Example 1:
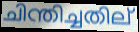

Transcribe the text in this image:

ചിന്തിച്ചതില്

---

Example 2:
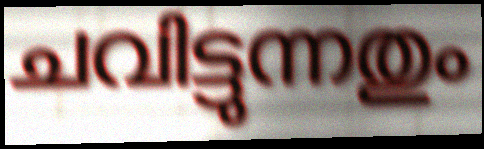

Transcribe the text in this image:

ചവിട്ടുന്നതും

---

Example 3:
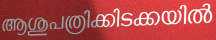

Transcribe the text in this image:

ആശുപത്രിക്കിടക്കയിൽ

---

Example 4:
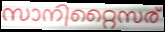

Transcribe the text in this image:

സാനിറ്റൈസര്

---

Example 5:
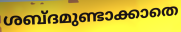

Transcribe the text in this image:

ശബ്ദമുണ്ടാക്കാതെ